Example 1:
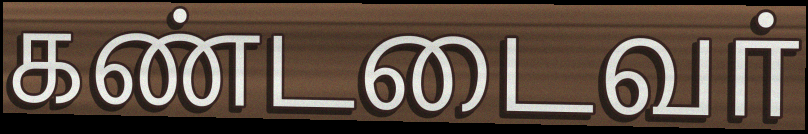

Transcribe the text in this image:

கண்டடைவர்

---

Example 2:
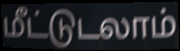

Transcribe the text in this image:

மீட்டுடலாம்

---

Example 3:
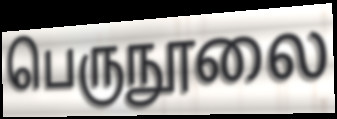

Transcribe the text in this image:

பெருநூலை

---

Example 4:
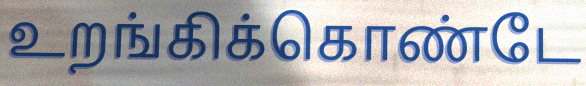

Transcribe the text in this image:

உறங்கிக்கொண்டே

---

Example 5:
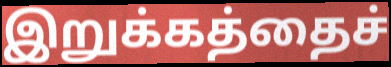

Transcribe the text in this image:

இறுக்கத்தைச்